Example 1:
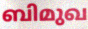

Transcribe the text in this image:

ബിമുഖ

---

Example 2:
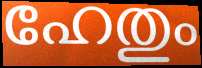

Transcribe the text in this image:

ഹേതും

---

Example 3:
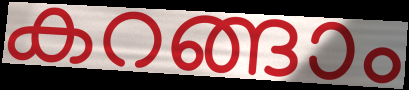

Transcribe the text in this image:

കറങ്ങാം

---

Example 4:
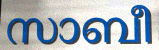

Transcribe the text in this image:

സാബീ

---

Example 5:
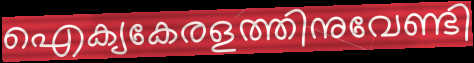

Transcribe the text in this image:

ഐക്യകേരളത്തിനുവേണ്ടി